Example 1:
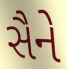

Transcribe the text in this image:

સૈને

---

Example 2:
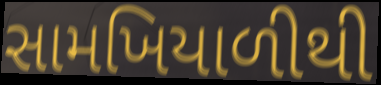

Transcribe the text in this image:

સામખિયાળીથી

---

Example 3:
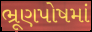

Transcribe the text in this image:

ભ્રૂણપોષમાં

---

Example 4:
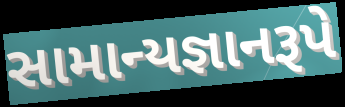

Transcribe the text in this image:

સામાન્યજ્ઞાનરૂપે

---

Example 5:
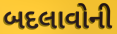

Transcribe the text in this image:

બદલાવોની